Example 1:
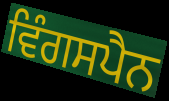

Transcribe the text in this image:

ਵਿੰਗਸਪੈਨ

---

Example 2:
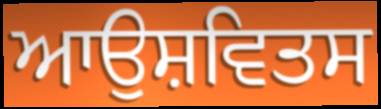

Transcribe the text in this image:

ਆਉਸ਼ਵਿਤਸ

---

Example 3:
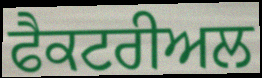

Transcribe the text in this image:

ਫੈਕਟਰੀਅਲ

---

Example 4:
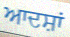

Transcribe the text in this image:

ਆਦਸ਼ਾਂ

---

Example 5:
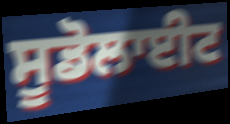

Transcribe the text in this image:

ਸੂਡੋਲਾਈਟ